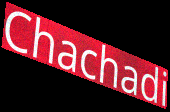
Chachadi